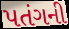
પતંગની